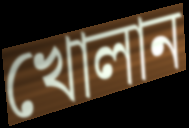
খোলান